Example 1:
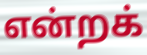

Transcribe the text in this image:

என்றக்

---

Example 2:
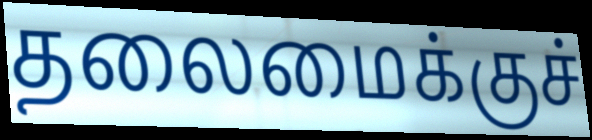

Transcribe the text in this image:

தலைமைக்குச்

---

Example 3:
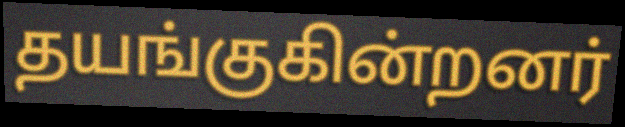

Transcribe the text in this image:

தயங்குகின்றனர்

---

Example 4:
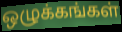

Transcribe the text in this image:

ஒழுக்கங்கள்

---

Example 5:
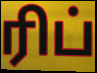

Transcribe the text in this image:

ரிப்